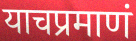
याचप्रमाणं